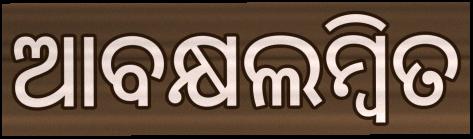
ଆବକ୍ଷଲମ୍ବିତ